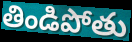
తిండిపోతు